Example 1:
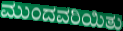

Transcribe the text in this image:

ಮುಂದವರಿಯಿತು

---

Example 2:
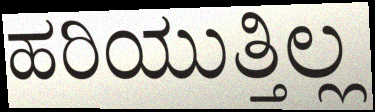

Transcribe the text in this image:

ಹರಿಯುತ್ತಿಲ್ಲ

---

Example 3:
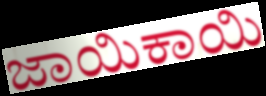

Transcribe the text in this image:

ಜಾಯಿಕಾಯಿ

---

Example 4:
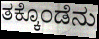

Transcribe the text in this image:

ತಕ್ಕೊಂಡೆನು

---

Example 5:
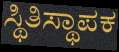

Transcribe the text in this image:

ಸ್ಥಿತಿಸ್ಥಾಪಕ